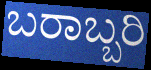
ಬರಾಬ್ಬರಿ